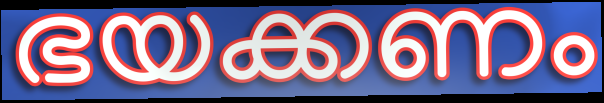
ഭയക്കണം